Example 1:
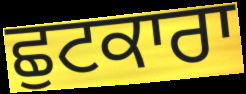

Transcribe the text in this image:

ਛੁਟਕਾਰਾ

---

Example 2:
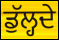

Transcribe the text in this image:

ਡੁੱਲ੍ਹਦੇ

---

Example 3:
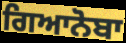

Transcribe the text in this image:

ਗਿਆਨੋਬਾ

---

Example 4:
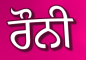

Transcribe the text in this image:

ਰੌਨੀ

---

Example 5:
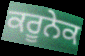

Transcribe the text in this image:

ਕਰੂਨੇਕ